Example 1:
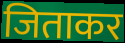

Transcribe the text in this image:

जिताकर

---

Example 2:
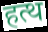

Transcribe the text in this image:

हत्थ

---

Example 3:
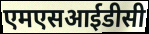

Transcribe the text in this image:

एमएसआईडीसी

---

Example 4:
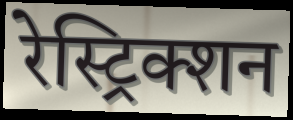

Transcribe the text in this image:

रेस्ट्रिक्शन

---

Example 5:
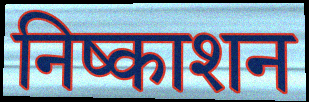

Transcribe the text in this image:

निष्काशन